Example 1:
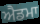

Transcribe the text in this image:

ਐਡਮਾ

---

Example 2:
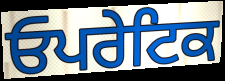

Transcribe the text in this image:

ਓਪਰੇਟਿਕ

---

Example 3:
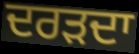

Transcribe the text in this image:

ਦਰੜਦਾ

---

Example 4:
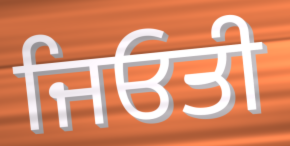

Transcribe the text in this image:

ਜਿਓਤੀ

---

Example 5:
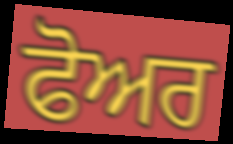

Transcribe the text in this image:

ਫੋਅਰ